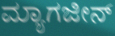
ಮ್ಯಾಗಜೀನ್